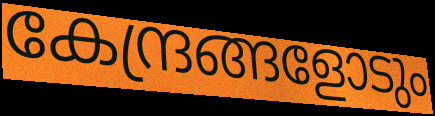
കേന്ദ്രങ്ങളോടും